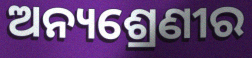
ଅନ୍ୟଶ୍ରେଣୀର